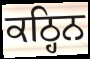
ਕਠ੍ਹਿਨ